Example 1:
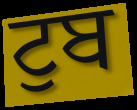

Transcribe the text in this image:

ਟੁਬ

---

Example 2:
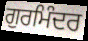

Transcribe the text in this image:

ਗੁਰਮਿੰਦਰ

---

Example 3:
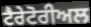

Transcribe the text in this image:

ਟੈਰੇਟੋਰੀਅਲ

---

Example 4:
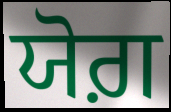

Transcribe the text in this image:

ਯੋਗ਼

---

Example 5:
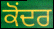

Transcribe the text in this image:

ਕੋਂਦਰ